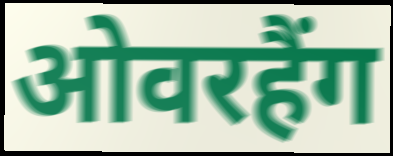
ओवरहैंग